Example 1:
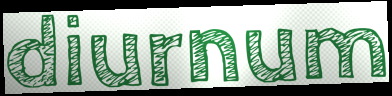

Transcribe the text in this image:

diurnum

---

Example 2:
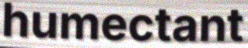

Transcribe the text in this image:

humectant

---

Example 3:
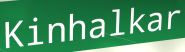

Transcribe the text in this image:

Kinhalkar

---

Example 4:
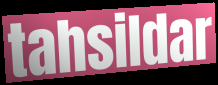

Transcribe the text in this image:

tahsildar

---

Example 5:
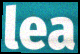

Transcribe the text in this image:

lea